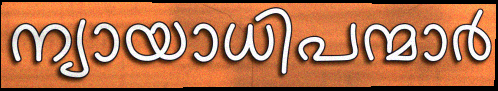
ന്യായാധിപന്മാർ